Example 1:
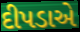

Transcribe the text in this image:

દીપડાએ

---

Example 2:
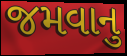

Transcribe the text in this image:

જમવાનુ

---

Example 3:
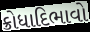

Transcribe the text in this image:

ક્રોધાદિભાવો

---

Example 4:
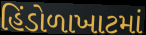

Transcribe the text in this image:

હિંડોળાખાટમાં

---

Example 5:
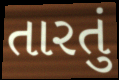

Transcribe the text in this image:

તારતું